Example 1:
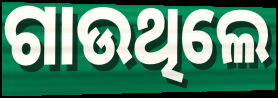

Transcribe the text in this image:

ଗାଉଥିଲେ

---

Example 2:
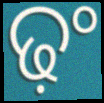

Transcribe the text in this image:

ଢ଼ଂ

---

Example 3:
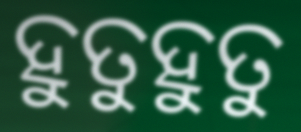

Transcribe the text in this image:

ହୁତୁହୁତୁ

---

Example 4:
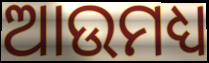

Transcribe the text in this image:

ଆଉମଧ୍ୟ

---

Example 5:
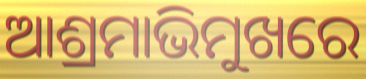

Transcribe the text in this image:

ଆଶ୍ରମାଭିମୁଖରେ